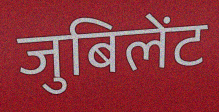
जुबिलेंट